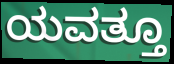
ಯವತ್ತೂ